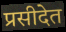
प्रसीदेत